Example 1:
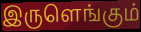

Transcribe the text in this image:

இருளெங்கும்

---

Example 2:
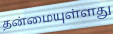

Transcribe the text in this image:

தன்மையுள்ளது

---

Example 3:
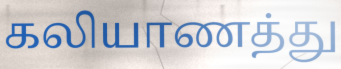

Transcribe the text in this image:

கலியாணத்து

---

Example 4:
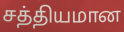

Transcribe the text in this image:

சத்தியமான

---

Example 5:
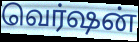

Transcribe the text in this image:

வெர்ஷன்